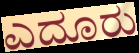
ಎದೂರು